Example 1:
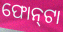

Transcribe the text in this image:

ଫୋନ୍‍ଟା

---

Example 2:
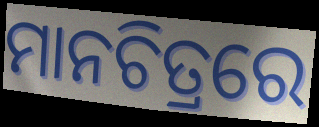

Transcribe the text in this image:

ମାନଚିତ୍ରରେ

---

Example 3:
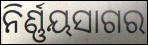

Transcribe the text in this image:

ନିର୍ଣ୍ଣୟସାଗର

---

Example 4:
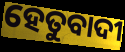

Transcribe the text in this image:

ହେତୁବାଦୀ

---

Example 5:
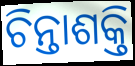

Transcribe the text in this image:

ଚିନ୍ତାଶକ୍ତି